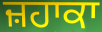
ਜ਼ਹਾਕਾ